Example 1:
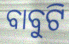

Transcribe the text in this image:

ବାବୁଟି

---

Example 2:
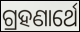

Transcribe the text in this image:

ଗ୍ରହଣାର୍ଥେ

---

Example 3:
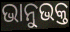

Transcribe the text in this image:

ଭାନୁଭକ୍ତ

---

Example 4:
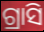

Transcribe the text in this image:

ଗ୍ରାସି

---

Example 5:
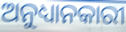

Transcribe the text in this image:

ଅନୁଧ୍ୟାନକାରୀ